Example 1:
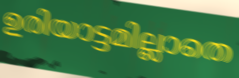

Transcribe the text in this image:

ഉരിയാട്ടമില്ലാതെ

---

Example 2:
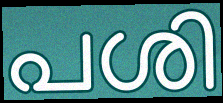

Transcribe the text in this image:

പശി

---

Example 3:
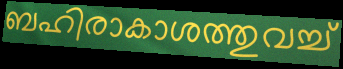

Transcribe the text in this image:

ബഹിരാകാശത്തുവച്ച്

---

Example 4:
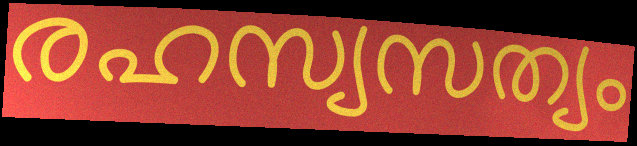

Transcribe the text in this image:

രഹസ്യസത്യം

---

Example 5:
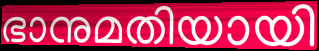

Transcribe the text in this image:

ഭാനുമതിയായി